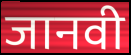
जानवी